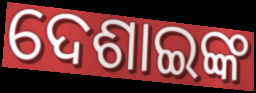
ଦେଶାଇଙ୍କ